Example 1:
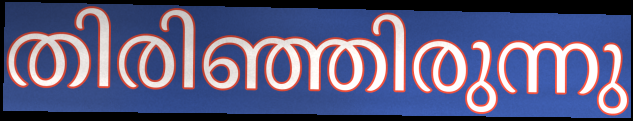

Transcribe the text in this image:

തിരിഞ്ഞിരുന്നു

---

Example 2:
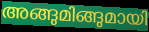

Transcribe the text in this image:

അങ്ങുമിങ്ങുമായി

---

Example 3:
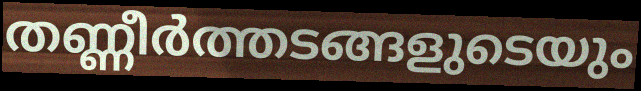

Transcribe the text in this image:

തണ്ണീർത്തടങ്ങളുടെയും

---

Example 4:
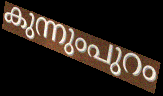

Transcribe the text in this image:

കുന്നുംപുറം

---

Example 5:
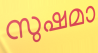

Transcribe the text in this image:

സുഷമാ